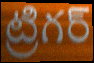
ట్రిగర్